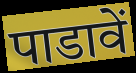
पाडावें